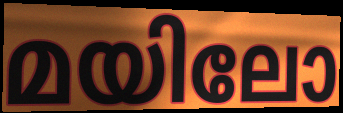
മയിലോ